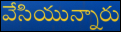
వేసియున్నారు